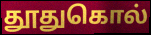
தூதுகொல்